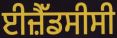
ਈਜ਼ੈੱਡਸੀਸੀ